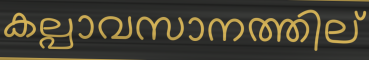
കല്പാവസാനത്തില്